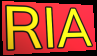
RIA